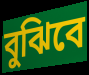
বুঝিবে